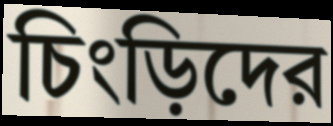
চিংড়িদের